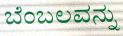
ಬೆಂಬಲವನ್ನು